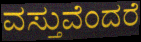
ವಸ್ತುವೆಂದರೆ